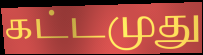
கட்டமுது